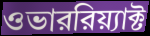
ওভাররিয়্যাক্ট